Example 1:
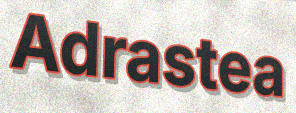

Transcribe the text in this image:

Adrastea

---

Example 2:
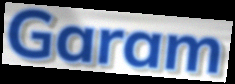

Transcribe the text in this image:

Garam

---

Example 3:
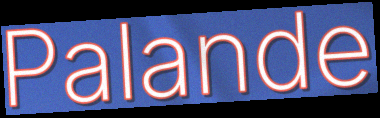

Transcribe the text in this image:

Palande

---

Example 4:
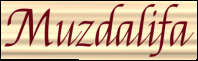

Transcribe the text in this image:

Muzdalifa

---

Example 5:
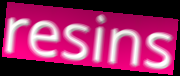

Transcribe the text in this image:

resins